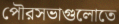
পৌরসভাগুলোতে